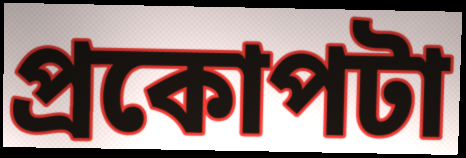
প্রকোপটা